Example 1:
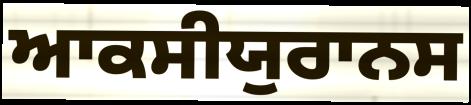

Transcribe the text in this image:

ਆਕਸੀਯੁਰਾਨਸ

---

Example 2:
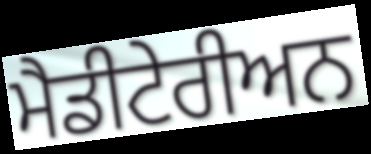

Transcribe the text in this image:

ਮੈਡੀਟੇਰੀਅਨ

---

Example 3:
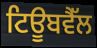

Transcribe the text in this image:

ਟਿਊਬਵੈੱਲ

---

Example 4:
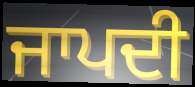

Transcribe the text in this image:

ਜਾਪਦੀ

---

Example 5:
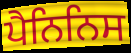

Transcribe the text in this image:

ਪੈਨਿਨਿਸ